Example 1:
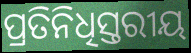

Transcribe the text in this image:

ପ୍ରତିନିଧିସ୍ତରୀୟ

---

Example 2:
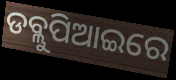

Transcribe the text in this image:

ଡବ୍ଲୁପିଆଇରେ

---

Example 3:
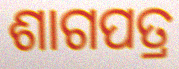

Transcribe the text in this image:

ଶାଗପତ୍ର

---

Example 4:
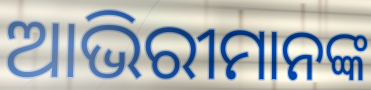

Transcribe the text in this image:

ଆଭିରୀମାନଙ୍କ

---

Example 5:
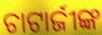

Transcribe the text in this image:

ଚାଟାର୍ଜୀଙ୍କ